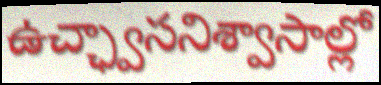
ఉచ్ఛ్వాసనిశ్వాసాల్లో